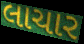
લાચાર